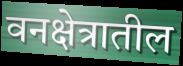
वनक्षेत्रातील